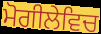
ਮੋਗੀਲੇਵਿਚ